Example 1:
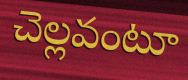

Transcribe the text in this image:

చెల్లవంటూ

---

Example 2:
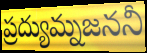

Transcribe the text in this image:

ప్రద్యుమ్నజననీ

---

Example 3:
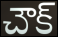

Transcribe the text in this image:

చౌక్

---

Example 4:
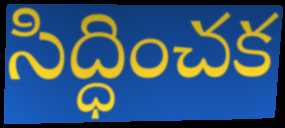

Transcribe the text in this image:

సిద్ధించక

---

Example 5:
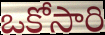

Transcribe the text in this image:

ఒకోసారి